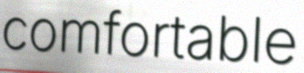
comfortable